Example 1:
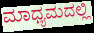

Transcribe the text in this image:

ಮಾಧ್ಯಮದಲ್ಲಿ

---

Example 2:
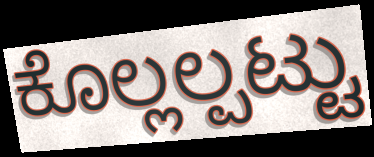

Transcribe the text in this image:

ಕೊಲ್ಲಲ್ಪಟ್ಟು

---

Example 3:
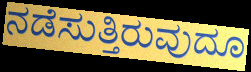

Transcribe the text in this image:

ನಡೆಸುತ್ತಿರುವುದೂ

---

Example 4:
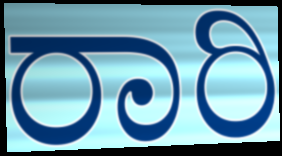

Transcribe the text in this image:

ರಾರಿ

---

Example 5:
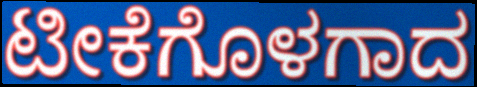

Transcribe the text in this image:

ಟೀಕೆಗೊಳಗಾದ